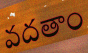
వదతాం